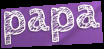
papa